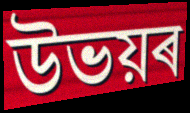
উভয়ৰ